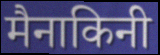
मैनाकिनी